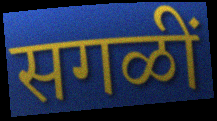
सगळीं